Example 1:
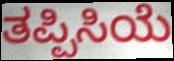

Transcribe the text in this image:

ತಪ್ಪಿಸಿಯೆ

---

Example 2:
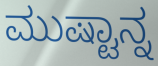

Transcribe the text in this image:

ಮುಷ್ಟಾನ್ನ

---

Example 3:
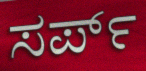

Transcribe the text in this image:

ಸರ್ಪ್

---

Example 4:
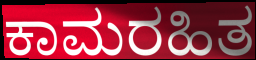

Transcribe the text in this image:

ಕಾಮರಹಿತ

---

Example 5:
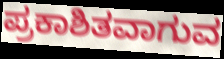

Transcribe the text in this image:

ಪ್ರಕಾಶಿತವಾಗುವ